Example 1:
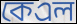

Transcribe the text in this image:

কেএল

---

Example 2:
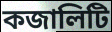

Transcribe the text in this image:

কজালিটি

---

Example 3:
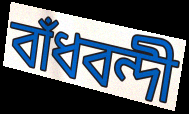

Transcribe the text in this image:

বাঁধবন্দী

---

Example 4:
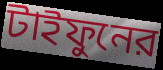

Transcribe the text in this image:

টাইফুনের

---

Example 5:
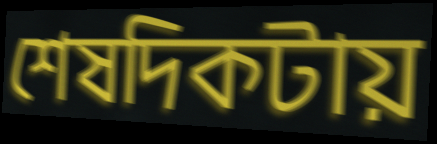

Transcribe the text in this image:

শেষদিকটায়